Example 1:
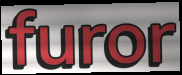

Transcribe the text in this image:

furor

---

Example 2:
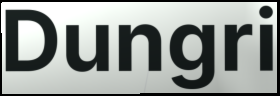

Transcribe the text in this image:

Dungri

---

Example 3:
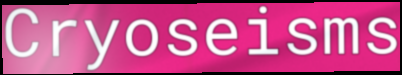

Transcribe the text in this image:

Cryoseisms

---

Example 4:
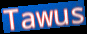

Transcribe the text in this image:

Tawus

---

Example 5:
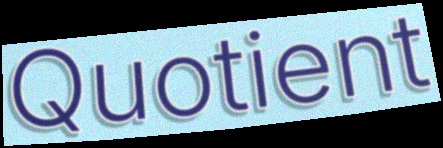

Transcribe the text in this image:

Quotient